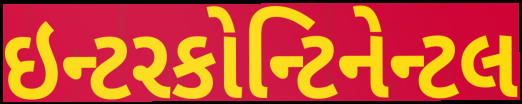
ઇન્ટરકોન્ટિનેન્ટલ